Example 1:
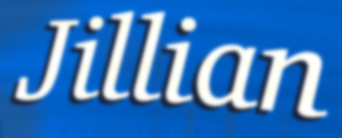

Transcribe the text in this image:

Jillian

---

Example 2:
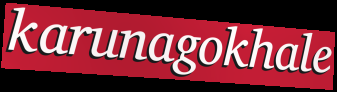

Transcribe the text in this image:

karunagokhale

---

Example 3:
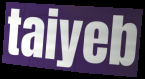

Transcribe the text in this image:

taiyeb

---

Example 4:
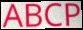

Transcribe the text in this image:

ABCP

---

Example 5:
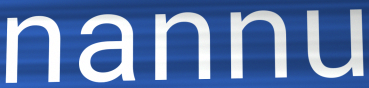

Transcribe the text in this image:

nannu